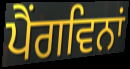
ਪੈਂਗਵਿਨਾਂ